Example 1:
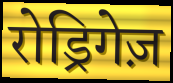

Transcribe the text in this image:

रोड्रिगेज़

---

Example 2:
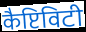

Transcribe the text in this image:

कैप्टिविटी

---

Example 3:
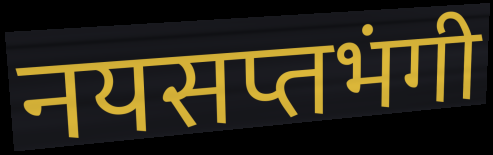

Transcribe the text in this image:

नयसप्तभंगी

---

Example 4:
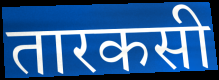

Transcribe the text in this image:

तारकसी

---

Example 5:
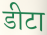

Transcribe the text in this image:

डीटा